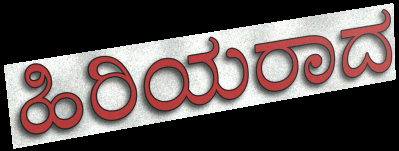
ಹಿರಿಯರಾದ